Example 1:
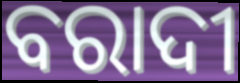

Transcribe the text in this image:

ବରାଦୀ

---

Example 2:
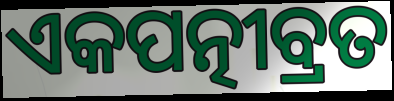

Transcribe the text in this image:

ଏକପତ୍ନୀବ୍ରତ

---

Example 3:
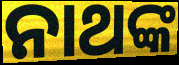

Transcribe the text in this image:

ନାଥଙ୍କ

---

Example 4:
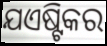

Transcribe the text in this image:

ଯଏଷ୍ଟିକର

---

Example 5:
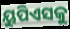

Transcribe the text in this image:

ୟୁପିଏସକୁ